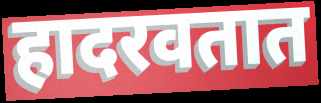
हादरवतात